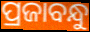
ପ୍ରଜାବନ୍ଧୁ